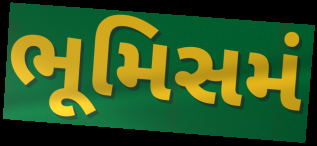
ભૂમિસમં